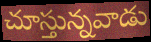
చూస్తున్నవాడు